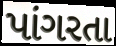
પાંગરતા